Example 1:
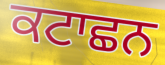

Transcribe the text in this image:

ਕਟਾਛਨ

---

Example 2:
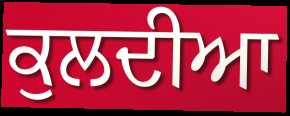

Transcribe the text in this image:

ਕੁਲਦੀਆ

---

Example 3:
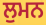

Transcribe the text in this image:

ਲੁਮਨ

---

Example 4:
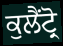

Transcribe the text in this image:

ਕੁਲੈਂਟ੍ਰੋ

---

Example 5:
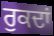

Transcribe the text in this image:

ਰੁਕਦਾਂ